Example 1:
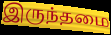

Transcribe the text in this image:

இருந்தமை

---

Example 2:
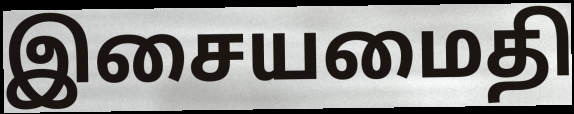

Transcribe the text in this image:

இசையமைதி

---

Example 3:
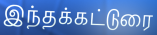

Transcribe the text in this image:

இந்தக்கட்டுரை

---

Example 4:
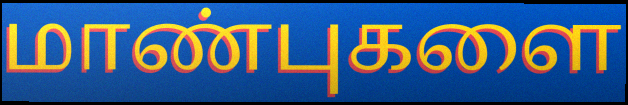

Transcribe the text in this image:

மாண்புகளை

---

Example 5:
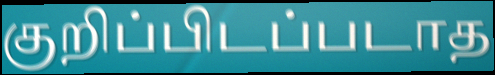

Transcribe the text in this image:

குறிப்பிடப்படாத